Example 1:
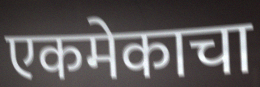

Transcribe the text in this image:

एकमेकाचा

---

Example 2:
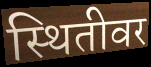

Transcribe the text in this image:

स्थितीवर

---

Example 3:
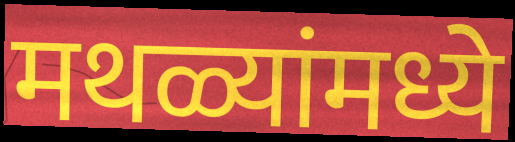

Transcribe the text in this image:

मथळ्यांमध्ये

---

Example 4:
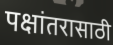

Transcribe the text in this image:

पक्षांतरासाठी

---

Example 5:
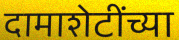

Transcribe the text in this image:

दामाशेटींच्या